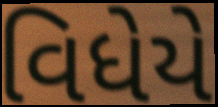
વિધેયે